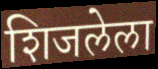
शिजलेला